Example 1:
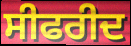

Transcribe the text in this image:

ਸੀਫਰੀਦ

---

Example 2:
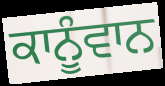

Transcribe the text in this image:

ਕਾਨੂੰਵਾਨ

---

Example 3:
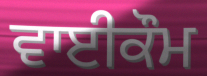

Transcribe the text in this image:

ਵਾਈਕੌਮ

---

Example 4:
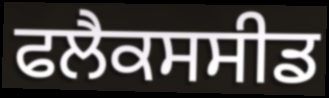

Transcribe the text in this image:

ਫਲੈਕਸਸੀਡ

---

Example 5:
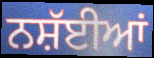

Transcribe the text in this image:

ਨਸ਼ੱਈਆਂ